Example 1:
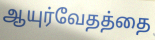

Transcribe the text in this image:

ஆயுர்வேதத்தை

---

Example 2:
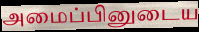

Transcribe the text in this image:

அமைப்பினுடைய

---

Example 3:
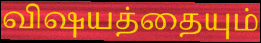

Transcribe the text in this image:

விஷயத்தையும்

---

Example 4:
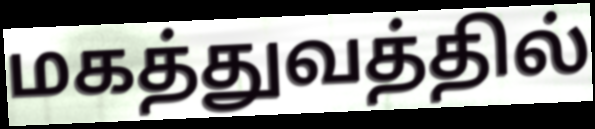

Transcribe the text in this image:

மகத்துவத்தில்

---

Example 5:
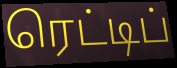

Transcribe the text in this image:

ரெட்டிப்